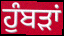
ਹੁੰਬੜਾਂ